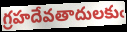
గ్రహదేవతాదులకుఁ